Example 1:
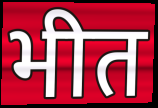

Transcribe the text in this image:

भीत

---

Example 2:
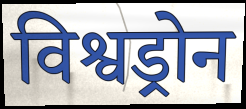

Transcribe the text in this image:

विश्वड्रोन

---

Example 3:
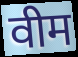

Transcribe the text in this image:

वीम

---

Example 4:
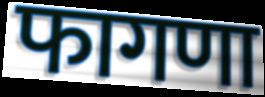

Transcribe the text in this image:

फागणा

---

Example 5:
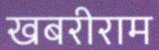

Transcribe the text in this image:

खबरीराम